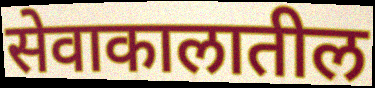
सेवाकालातील